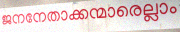
ജനനേതാക്കന്മാരെല്ലാം